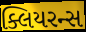
ક્લિયરન્સ